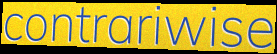
contrariwise